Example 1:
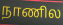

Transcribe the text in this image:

நாணில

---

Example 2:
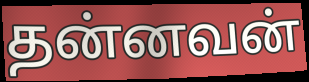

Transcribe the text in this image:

தன்னவன்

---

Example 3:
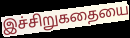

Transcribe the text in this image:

இச்சிறுகதையை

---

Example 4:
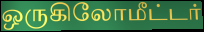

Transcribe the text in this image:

ஒருகிலோமீட்டர்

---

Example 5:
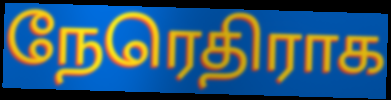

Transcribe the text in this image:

நேரெதிராக